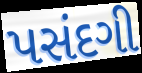
પસંદગી